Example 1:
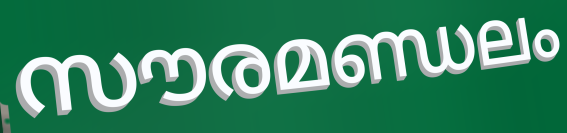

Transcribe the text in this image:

സൗരമണ്ഡലം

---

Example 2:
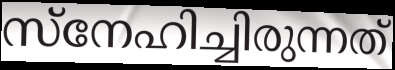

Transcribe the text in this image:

സ്നേഹിച്ചിരുന്നത്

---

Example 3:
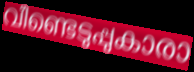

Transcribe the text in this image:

വീണ്ടെടുപ്പുകാരാ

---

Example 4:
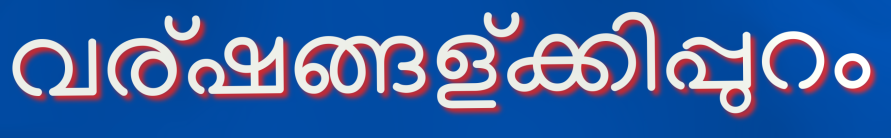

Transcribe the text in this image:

വര്ഷങ്ങള്ക്കിപ്പുറം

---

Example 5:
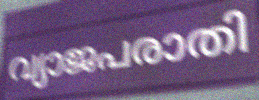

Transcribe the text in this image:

വ്യാജപരാതി